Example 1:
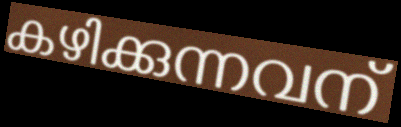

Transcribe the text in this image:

കഴിക്കുന്നവന്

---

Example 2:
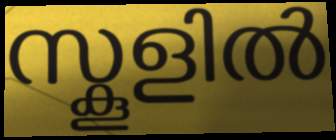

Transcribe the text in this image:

സ്കൂളിൽ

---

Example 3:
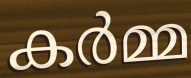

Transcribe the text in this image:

കർമ്മ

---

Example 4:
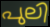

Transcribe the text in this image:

പുലി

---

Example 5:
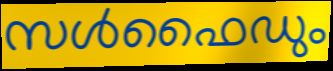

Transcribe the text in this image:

സൾഫൈഡും